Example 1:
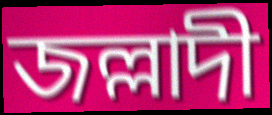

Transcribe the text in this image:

জল্লাদী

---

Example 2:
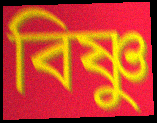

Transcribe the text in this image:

বিষ্ণু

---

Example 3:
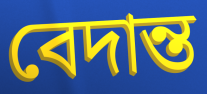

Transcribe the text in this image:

বেদান্ত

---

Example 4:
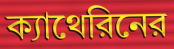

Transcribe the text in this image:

ক্যাথেরিনের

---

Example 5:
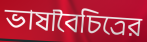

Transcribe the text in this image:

ভাষাবৈচিত্রের